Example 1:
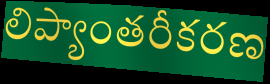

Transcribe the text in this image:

లిప్యాంతరీకరణ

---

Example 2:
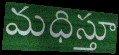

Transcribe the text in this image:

మధిస్తూ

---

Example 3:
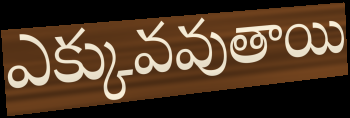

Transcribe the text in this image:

ఎక్కువవుతాయి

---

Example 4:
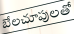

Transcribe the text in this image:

బేలచూపులతో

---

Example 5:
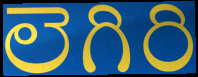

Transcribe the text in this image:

లెగిరి